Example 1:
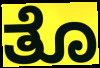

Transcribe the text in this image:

ತೊ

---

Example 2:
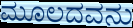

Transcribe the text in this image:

ಮೂಲದವನು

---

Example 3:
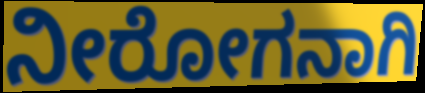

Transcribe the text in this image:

ನೀರೋಗನಾಗಿ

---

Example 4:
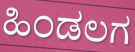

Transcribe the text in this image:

ಹಿಂಡಲಗ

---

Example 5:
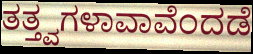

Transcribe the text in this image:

ತತ್ತ್ವಗಳಾವಾವೆಂದಡೆ